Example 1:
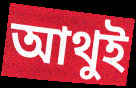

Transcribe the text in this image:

আথুই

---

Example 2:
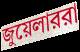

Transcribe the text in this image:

জুয়েলাররা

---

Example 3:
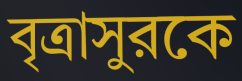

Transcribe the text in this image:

বৃত্রাসুরকে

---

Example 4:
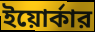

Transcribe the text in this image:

ইয়োর্কার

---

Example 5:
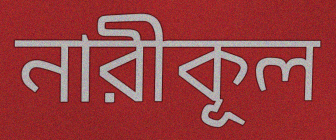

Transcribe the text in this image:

নারীকূল